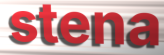
stena